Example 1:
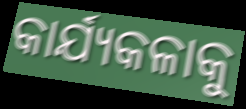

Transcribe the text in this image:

କାର୍ଯ୍ୟକଳାକୁ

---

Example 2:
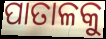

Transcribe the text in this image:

ପାତାଳକୁ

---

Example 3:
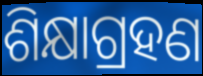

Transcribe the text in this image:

ଶିକ୍ଷାଗ୍ରହଣ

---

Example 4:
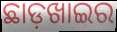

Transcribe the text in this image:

ଛାଡ଼ଖାଇର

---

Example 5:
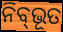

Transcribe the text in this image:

ନିବ୍‌ଭୂତ